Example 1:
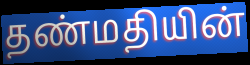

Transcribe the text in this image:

தண்மதியின்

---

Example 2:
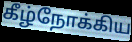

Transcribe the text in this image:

கீழ்நோக்கிய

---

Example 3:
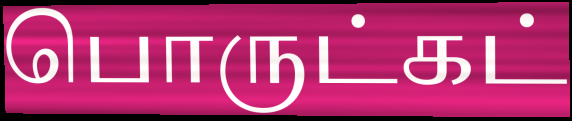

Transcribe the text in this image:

பொருட்கட்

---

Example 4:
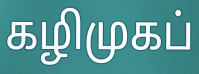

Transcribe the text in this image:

கழிமுகப்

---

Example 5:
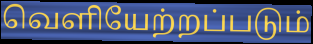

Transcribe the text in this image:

வெளியேற்றப்படும்